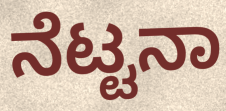
ನೆಟ್ಟನಾ